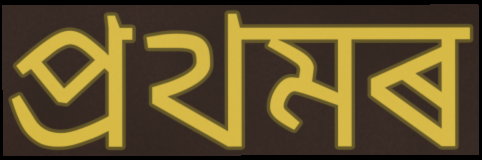
প্ৰথমৰ